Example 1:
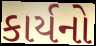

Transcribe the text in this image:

કાર્યનો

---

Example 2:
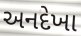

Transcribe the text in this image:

અનદેખા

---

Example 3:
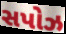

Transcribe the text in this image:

સપોઝ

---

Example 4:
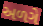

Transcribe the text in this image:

અળગે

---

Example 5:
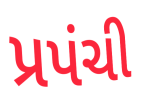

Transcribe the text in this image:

પ્રપંચી